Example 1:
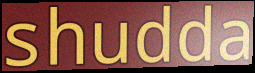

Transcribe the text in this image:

shudda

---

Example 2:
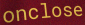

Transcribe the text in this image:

onclose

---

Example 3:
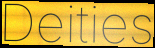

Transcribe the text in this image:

Deities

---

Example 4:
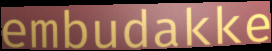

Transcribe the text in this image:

embudakke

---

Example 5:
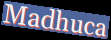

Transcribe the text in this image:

Madhuca